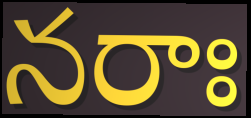
నరాః